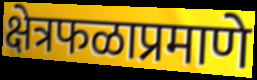
क्षेत्रफळाप्रमाणे